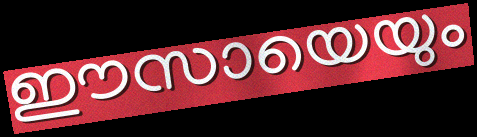
ഈസായെയും